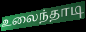
உலைந்தாடி